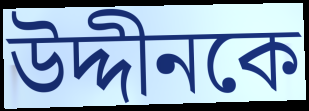
উদ্দীনকে